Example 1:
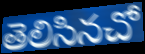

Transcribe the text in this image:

తెలిసినచో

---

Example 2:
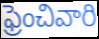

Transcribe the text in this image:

ఫ్రెంచివారి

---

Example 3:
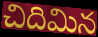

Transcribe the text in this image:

చిదిమిన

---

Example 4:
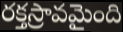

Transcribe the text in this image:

రక్తస్రావమైంది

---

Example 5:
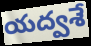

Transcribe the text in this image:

యద్వశే